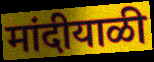
मांदीयाळी